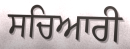
ਸਚਿਆਰੀ